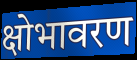
क्षोभावरण